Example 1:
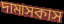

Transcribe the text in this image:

দামাসকাস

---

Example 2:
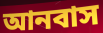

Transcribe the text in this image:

আনবাস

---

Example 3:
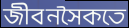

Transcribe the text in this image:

জীবনসৈকতে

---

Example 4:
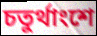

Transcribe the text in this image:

চতুর্থাংশে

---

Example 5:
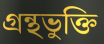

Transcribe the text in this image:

গ্রন্থভুক্তি